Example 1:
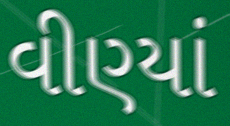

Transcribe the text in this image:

વીણ્યાં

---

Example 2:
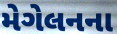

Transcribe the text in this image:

મેગેલનના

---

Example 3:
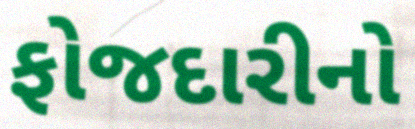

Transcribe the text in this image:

ફોજદારીનો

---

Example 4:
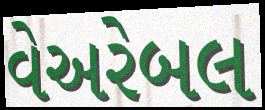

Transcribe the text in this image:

વેઅરેબલ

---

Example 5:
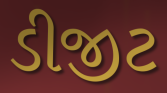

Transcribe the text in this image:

ડીજીટ